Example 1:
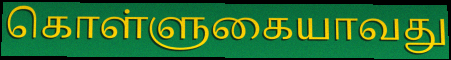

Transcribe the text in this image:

கொள்ளுகையாவது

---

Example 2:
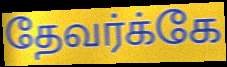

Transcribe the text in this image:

தேவர்க்கே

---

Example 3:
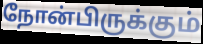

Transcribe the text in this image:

நோன்பிருக்கும்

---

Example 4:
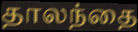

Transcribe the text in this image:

தாலந்தை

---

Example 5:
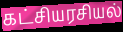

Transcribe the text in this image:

கட்சியரசியல்